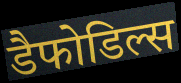
डैफोडिल्स